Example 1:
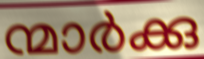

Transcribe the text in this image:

ന്മാർക്കു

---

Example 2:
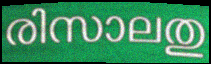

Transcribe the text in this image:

രിസാലതു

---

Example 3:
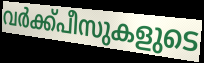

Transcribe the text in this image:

വർക്ക്പീസുകളുടെ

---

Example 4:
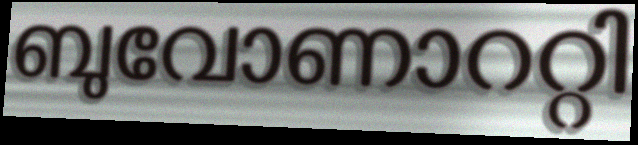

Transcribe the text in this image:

ബുവോണാററ്റി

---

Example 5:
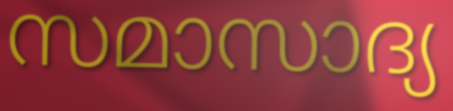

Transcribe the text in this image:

സമാസാദ്യ